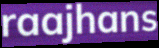
raajhans